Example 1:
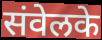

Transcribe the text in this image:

संवेलके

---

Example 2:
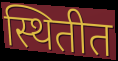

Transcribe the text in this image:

स्थितीत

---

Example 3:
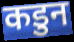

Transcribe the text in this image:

कडुन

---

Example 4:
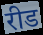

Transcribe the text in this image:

रीड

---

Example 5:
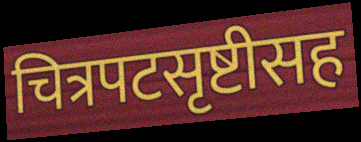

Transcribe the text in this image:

चित्रपटसृष्टीसह